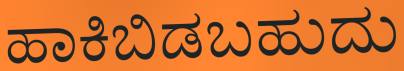
ಹಾಕಿಬಿಡಬಹುದು